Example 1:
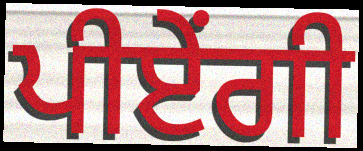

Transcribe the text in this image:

ਪੀਏਂਗੀ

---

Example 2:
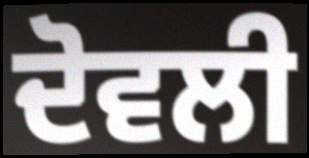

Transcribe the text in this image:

ਦੋਵਲੀ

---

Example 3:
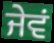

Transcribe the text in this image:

ਜੇਵਂ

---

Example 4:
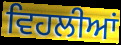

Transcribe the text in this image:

ਵਿਹਲੀਆਂ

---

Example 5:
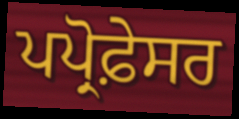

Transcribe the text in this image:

ਪਪ੍ਰੋਫ਼ੇਸਰ